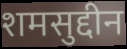
शमसुद्दीन